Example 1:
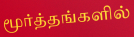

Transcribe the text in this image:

மூர்த்தங்களில்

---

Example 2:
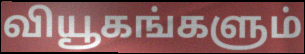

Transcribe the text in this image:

வியூகங்களும்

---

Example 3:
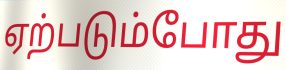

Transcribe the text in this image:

ஏற்படும்போது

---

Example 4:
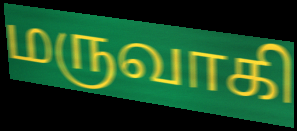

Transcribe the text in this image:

மருவாகி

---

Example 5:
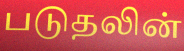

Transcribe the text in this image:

படுதலின்